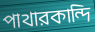
পাথারকান্দি